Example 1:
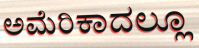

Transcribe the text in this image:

ಅಮೆರಿಕಾದಲ್ಲೂ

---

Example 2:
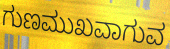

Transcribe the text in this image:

ಗುಣಮುಖವಾಗುವ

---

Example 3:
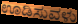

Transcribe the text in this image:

ಊಡಿಸುವಳು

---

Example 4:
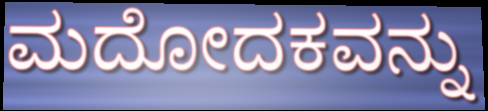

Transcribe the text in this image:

ಮದೋದಕವನ್ನು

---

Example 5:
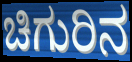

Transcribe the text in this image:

ಚಿಗುರಿನ